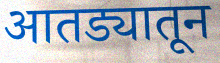
आतड्यातून